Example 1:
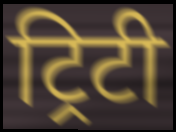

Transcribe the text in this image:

ट्रिटी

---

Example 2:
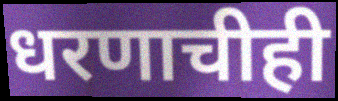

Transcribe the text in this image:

धरणाचीही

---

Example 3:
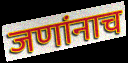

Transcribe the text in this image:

जणांनाच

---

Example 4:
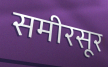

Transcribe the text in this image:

समीरसूर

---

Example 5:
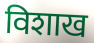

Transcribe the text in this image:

विशाख